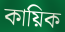
কায়িক